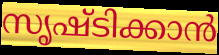
സൃഷ്ടിക്കാൻ